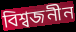
বিশ্বজনীন